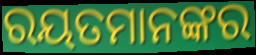
ରୟତମାନଙ୍କର